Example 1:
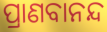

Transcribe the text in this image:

ପ୍ରାଣବାନନ୍ଦ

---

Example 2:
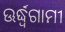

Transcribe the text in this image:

ଊର୍ଦ୍ଧ୍ଵଗାମୀ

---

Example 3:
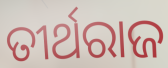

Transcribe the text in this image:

ତୀର୍ଥରାଜ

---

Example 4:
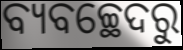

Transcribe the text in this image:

ବ୍ୟବଚ୍ଛେଦରୁ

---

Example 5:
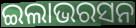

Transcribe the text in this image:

ଇଲାଭରସନ